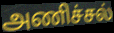
அணிச்சல்